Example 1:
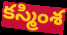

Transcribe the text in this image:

కస్మింశ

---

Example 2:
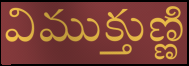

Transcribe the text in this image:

విముక్తుణ్ణి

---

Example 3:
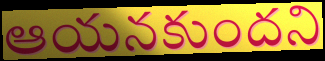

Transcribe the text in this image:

ఆయనకుందని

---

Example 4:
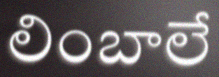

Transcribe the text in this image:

లింబాలే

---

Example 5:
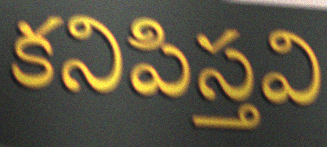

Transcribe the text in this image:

కనిపిస్తవి